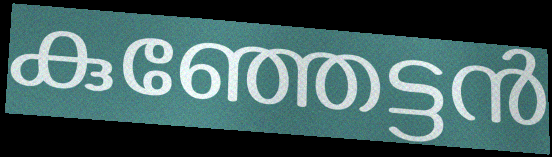
കുഞ്ഞേട്ടൻ